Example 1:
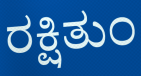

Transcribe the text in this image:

ರಕ್ಷಿತುಂ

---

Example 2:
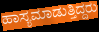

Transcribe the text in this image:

ಹಾಸ್ಯಮಾಡುತ್ತಿದ್ದರು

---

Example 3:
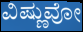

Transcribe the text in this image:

ವಿಷ್ಣುವೋ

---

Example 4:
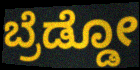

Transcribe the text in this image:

ಬ್ರೆಡ್ಡೋ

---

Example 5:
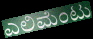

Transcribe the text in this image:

ಎಲಿಮೆಂಟು